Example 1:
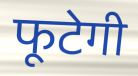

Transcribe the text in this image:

फूटेगी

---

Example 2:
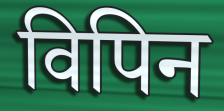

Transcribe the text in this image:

विपिन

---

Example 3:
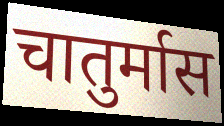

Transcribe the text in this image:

चातुर्मास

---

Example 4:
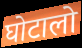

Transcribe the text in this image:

घोटालो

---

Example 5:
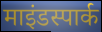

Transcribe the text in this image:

माइंडस्पार्क